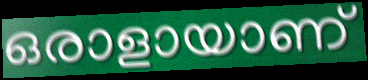
ഒരാളായാണ്